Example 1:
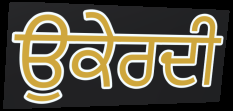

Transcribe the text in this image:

ਉਕੇਰਦੀ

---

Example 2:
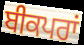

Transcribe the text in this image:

ਬੀਕਪਰਾਂ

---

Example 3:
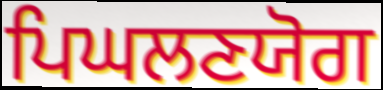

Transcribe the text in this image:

ਪਿਘਲਣਯੋਗ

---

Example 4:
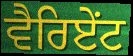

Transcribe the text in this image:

ਵੈਰਿਏਂਟ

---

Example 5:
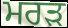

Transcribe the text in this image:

ਮਰੜ